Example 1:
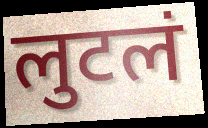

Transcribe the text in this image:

लुटलं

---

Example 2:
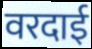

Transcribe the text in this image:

वरदाई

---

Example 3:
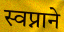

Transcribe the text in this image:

स्वप्नाने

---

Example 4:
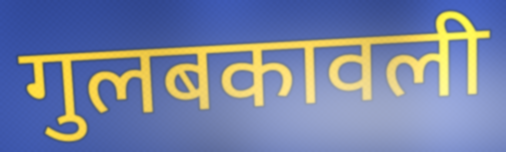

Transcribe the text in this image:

गुलबकावली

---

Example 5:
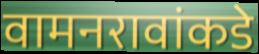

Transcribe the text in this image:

वामनरावांकडे